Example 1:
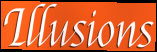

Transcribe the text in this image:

Illusions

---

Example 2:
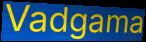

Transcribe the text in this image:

Vadgama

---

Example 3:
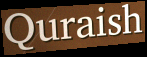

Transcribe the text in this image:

Quraish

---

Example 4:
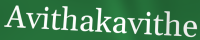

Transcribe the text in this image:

Avithakavithe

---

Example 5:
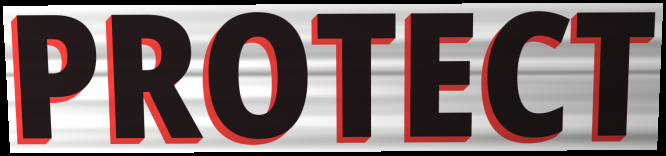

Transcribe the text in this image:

PROTECT